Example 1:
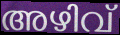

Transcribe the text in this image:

അഴിവ്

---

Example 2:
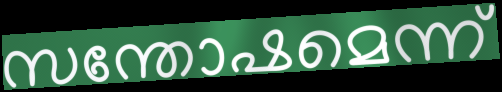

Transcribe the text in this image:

സന്തോഷമെന്ന്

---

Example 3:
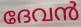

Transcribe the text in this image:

ദേവൻ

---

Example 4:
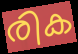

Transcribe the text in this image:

രിക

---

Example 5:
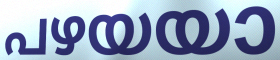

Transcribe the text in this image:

പഴയയാ